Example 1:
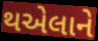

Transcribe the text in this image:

થએલાને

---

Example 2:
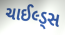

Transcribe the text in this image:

ચાઈલ્ડ્સ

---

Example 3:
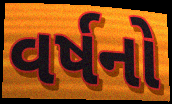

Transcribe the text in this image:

વર્ષનો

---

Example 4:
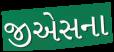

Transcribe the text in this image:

જીએસના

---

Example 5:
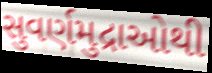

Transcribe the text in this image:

સુવર્ણમુદ્રાઓથી